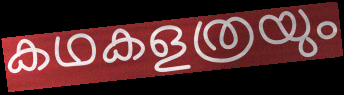
കഥകളത്രയും